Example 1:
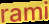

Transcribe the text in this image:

rami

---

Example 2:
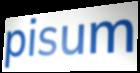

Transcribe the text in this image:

pisum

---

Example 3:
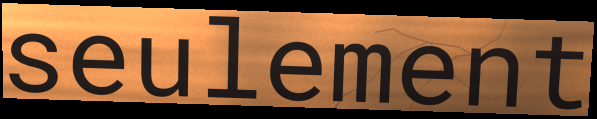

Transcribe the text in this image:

seulement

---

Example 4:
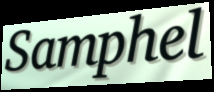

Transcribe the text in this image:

Samphel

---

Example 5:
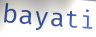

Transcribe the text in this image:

bayati